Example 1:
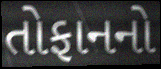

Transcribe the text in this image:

તોફાનનો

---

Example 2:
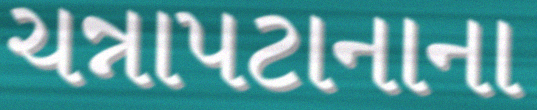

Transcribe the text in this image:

ચન્નાપટાનાના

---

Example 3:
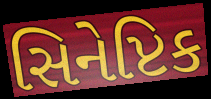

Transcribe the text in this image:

સિનેપ્ટિક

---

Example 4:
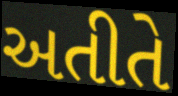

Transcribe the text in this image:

અતીતે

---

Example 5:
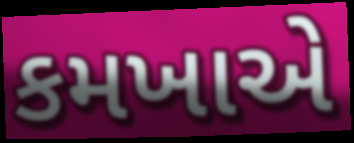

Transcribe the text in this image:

કમખાએ